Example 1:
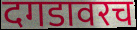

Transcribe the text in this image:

दगडावरच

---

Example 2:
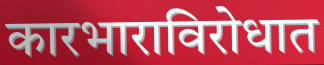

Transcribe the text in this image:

कारभाराविरोधात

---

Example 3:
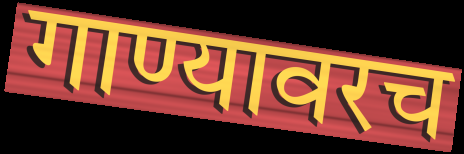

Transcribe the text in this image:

गाण्यावरच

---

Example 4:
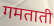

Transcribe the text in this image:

गमताती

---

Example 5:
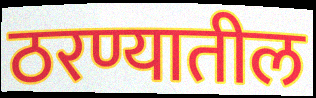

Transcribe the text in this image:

ठरण्यातील